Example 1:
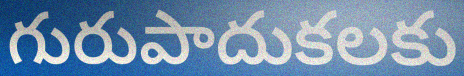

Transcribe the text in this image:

గురుపాదుకలకు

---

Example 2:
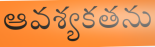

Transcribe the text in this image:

ఆవశ్యకతను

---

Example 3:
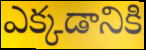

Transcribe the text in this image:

ఎక్కడానికి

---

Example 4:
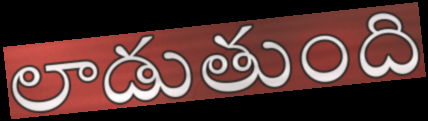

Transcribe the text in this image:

లాడుతుంది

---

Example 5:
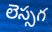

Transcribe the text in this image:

లెస్సగ